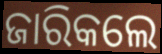
ଜାରିକଲେ